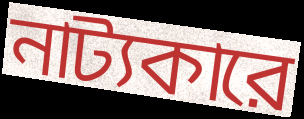
নাট্যকারে